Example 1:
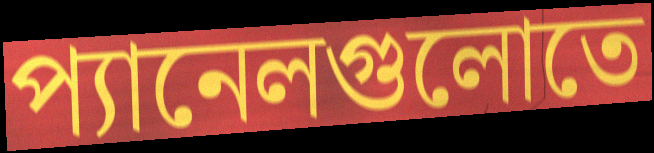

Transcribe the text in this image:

প্যানেলগুলোতে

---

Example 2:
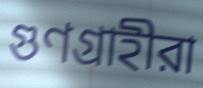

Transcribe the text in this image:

গুণগ্রাহীরা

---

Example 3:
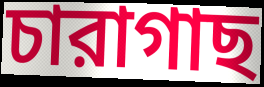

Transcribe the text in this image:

চারাগাছ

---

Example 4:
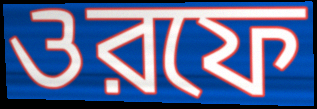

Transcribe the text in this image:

ওরফে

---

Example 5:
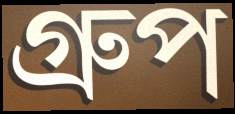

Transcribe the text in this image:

গ্রুপ